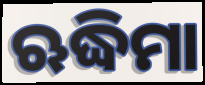
ଋଦ୍ଧିମା